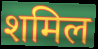
शमिल